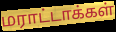
மராட்டாக்கள்